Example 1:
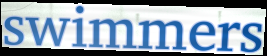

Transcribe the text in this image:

swimmers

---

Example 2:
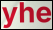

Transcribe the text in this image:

yhe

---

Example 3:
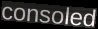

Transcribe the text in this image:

consoled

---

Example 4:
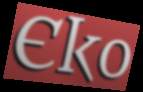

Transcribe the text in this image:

Eko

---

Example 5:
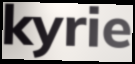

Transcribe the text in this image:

kyrie